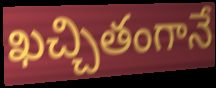
ఖచ్చితంగానే